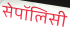
सेपॉलिसी